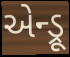
એન્ડ્રૂ